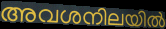
അവശനിലയിൽ